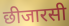
छीजारसी